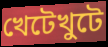
খেটেখুটে